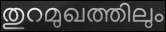
തുറമുഖത്തിലും